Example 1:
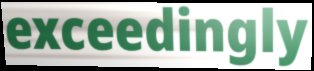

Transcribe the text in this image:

exceedingly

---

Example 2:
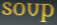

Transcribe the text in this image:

soup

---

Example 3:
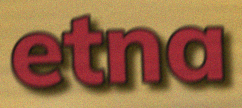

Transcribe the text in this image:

etna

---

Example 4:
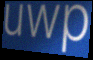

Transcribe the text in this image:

uwp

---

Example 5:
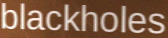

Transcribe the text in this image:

blackholes